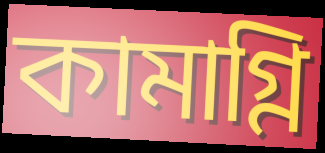
কামাগ্নি